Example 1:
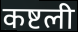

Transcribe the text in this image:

कष्टली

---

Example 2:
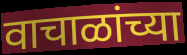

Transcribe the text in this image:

वाचाळांच्या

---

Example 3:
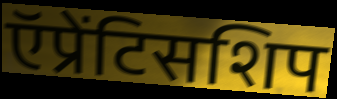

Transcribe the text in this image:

ऍप्रेंटिसशिप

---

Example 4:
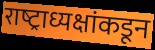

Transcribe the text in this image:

राष्ट्राध्यक्षांकडून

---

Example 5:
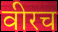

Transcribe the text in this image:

वीरच